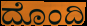
ದೊಂದಿ